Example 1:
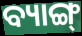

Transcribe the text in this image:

ବ୍ୟାଙ୍ଗ୍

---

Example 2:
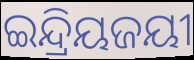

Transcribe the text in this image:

ଇନ୍ଦ୍ରିୟଜୟୀ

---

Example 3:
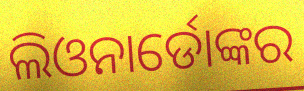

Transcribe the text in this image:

ଲିଓନାର୍ଡୋଙ୍କର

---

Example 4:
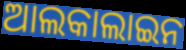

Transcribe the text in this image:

ଆଲକାଲାଇନ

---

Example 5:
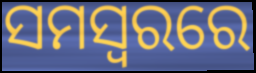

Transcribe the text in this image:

ସମସ୍ବରରେ